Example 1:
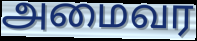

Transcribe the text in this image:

அமைவர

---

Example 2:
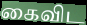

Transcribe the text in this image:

கைவிட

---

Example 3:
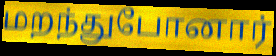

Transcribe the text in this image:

மறந்துபோனார்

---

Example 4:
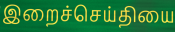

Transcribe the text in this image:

இறைச்செய்தியை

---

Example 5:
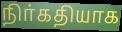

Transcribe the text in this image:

நிர்கதியாக